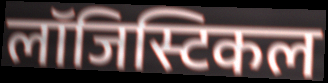
लॉजिस्टिकल